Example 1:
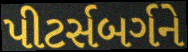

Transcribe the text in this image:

પીટર્સબર્ગને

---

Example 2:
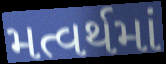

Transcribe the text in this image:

મત્વર્થમાં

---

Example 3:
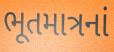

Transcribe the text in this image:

ભૂતમાત્રનાં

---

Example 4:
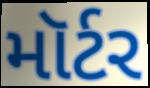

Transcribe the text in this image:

મૉર્ટર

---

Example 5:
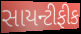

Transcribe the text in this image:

સાયન્ટીફીક